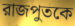
রাজপুতকে